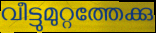
വീട്ടുമുറ്റത്തേക്കു